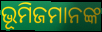
ଭୂମିଜମାନଙ୍କ